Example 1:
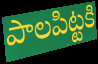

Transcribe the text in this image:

పాలపిట్టకి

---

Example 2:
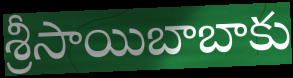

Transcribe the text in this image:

శ్రీసాయిబాబాకు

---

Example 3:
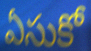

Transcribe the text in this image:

ఏసుకో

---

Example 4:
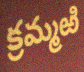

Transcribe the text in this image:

క్రమ్మఱి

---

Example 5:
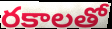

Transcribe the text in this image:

రకాలతో